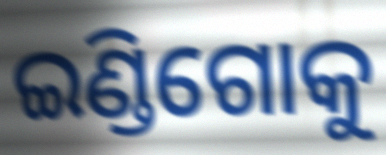
ଇଣ୍ଡିଗୋକୁ